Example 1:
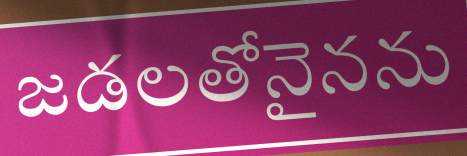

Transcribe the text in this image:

జడలతోనైనను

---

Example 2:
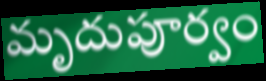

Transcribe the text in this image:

మృదుపూర్వం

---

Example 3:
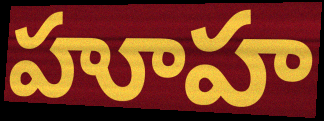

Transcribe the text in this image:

హూహ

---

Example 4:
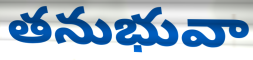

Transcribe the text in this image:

తనుభువా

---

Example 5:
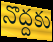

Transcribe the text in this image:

నొద్దకు